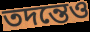
তদন্তেও